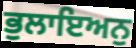
ਭੁਲਾਇਅਨੁ